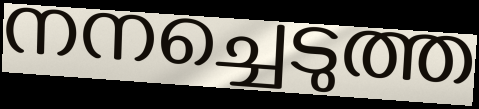
നനച്ചെടുത്ത